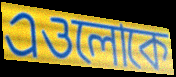
এওলোকে